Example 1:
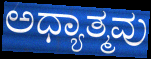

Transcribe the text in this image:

ಅಧ್ಯಾತ್ಮವು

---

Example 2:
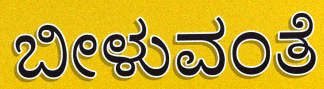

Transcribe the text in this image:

ಬೀಳುವಂತೆ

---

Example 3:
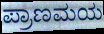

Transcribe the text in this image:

ಪ್ರಾಣಮಯ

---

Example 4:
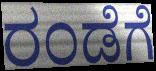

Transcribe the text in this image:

ರಂಡೆಗೆ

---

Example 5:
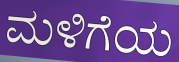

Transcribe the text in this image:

ಮಳಿಗೆಯ